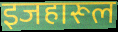
इजहारूल